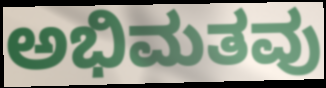
ಅಭಿಮತವು